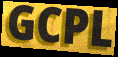
GCPL